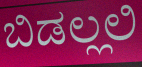
ಬಿಡಲ್ಲಲಿ